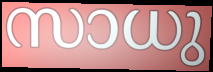
സാധു